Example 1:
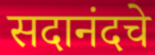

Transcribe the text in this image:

सदानंदचे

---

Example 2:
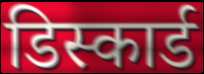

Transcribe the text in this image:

डिस्कार्ड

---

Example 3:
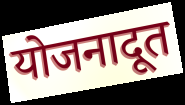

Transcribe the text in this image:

योजनादूत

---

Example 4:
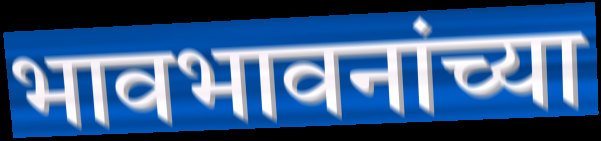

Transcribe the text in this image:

भावभावनांच्या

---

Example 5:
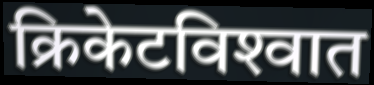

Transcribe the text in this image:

क्रिकेटविश्‍वात